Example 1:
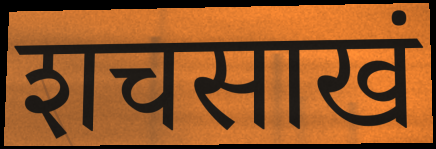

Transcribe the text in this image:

शचसाखं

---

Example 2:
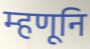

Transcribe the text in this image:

म्हणूनि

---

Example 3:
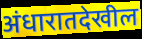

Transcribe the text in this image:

अंधारातदेखील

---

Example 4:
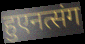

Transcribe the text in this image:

हुएनत्संग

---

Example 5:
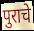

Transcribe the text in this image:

पुराचे